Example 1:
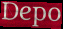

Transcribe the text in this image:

Depo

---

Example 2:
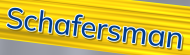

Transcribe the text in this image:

Schafersman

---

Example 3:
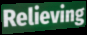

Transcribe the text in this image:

Relieving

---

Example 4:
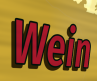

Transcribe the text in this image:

Wein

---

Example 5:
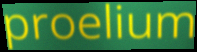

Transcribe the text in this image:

proelium